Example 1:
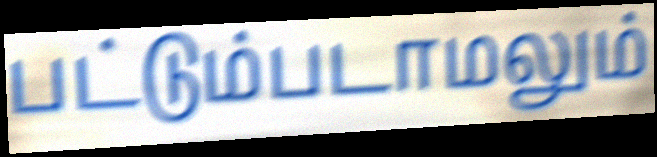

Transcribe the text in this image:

பட்டும்படாமலும்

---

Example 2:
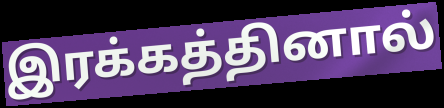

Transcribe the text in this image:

இரக்கத்தினால்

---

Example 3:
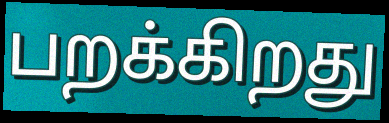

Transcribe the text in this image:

பறக்கிறது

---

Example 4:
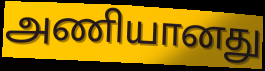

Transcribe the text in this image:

அணியானது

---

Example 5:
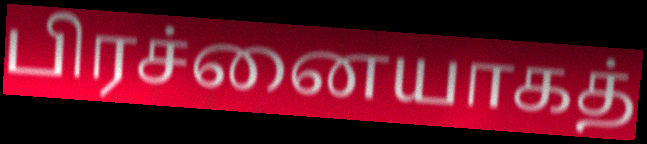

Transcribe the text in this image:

பிரச்னையாகத்